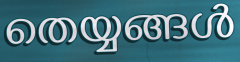
തെയ്യങ്ങൾ